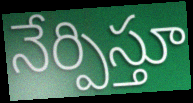
నేర్పిస్తూ